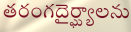
తరంగదైర్ఘ్యాలను